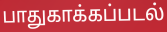
பாதுகாக்கப்படல்